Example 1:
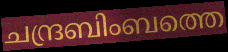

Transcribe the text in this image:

ചന്ദ്രബിംബത്തെ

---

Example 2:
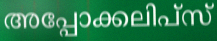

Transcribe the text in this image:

അപ്പോക്കലിപ്സ്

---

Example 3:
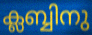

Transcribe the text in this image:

ക്ലബ്ബിനു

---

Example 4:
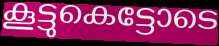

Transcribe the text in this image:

കൂട്ടുകെട്ടോടെ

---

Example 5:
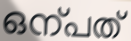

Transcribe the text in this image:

ഒന്പത്